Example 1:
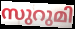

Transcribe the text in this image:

സുറുമി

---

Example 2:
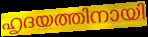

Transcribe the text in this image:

ഹൃദയത്തിനായി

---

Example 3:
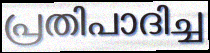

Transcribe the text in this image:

പ്രതിപാദിച്ച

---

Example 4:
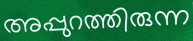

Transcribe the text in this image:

അപ്പുറത്തിരുന്ന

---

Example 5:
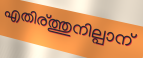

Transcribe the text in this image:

എതിര്ത്തുനില്പാന്